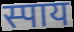
स्पाय